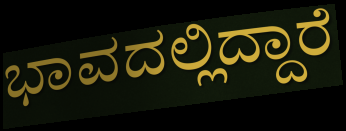
ಭಾವದಲ್ಲಿದ್ದಾರೆ